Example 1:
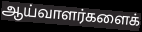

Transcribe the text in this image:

ஆய்வாளர்களைக்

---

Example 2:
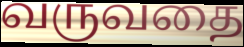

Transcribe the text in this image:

வருவதை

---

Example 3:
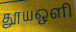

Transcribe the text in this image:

தூயஒளி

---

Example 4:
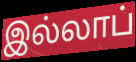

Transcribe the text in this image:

இல்லாப்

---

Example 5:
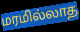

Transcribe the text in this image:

மரமில்லாத